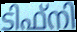
ടിഫ്നി